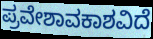
ಪ್ರವೇಶಾವಕಾಶವಿದೆ